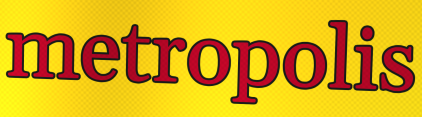
metropolis